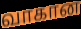
வாகான